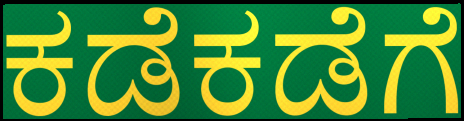
ಕಡೆಕಡೆಗೆ